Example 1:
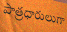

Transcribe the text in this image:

పాత్రధారులుగా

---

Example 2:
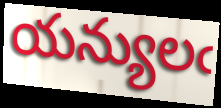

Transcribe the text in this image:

యన్యులఁ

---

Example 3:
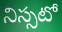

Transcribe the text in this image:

నిస్సటో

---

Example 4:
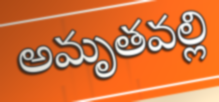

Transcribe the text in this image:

అమృతవల్లి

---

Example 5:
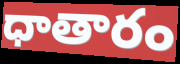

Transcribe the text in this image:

ధాతారం